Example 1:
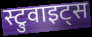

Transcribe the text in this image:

स्ट्रुवाइट्स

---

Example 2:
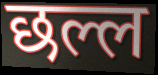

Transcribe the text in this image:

छल्ल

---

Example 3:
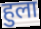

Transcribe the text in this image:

हुला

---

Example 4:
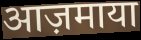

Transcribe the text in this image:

आज़माया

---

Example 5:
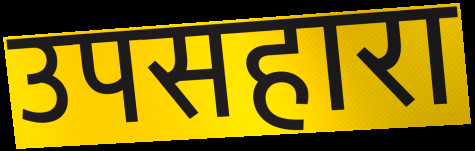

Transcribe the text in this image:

उपसहारा